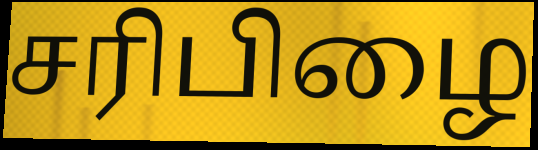
சரிபிழை